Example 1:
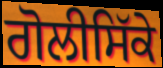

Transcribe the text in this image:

ਗੋਲੀਸਿੱਕੇ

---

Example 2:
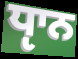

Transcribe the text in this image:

ਧੵਾਨ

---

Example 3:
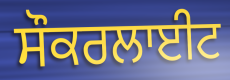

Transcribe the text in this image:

ਸੌਕਰਲਾਈਟ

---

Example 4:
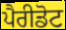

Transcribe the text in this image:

ਪੈਰੀਡੋਟ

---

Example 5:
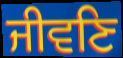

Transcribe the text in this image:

ਜੀਵਣਿ